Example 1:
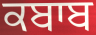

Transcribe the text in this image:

ਕਬਾਬ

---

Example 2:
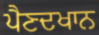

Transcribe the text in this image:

ਪੈਣਦਖਾਨ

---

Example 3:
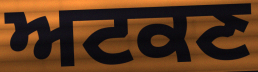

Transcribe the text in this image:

ਅਟਕਣ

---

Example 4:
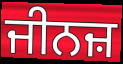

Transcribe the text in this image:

ਜੀਨਜ਼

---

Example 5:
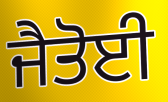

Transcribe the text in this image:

ਜੈਤੋਈ